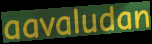
aavaludan